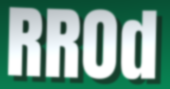
RROd